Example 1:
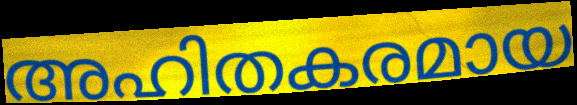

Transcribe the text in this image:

അഹിതകരമായ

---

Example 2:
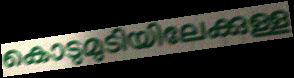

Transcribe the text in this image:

കൊടുമുടിയിലേക്കുള്ള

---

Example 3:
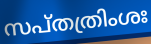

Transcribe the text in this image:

സപ്തത്രിംശഃ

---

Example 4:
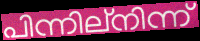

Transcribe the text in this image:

പിന്നില്നിന്ന്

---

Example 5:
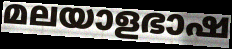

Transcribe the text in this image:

മലയാളഭാഷ